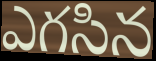
ఎగసిన